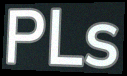
PLs